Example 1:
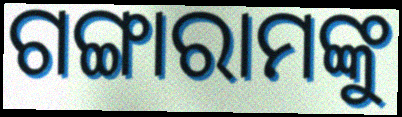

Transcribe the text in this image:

ଗଙ୍ଗାରାମଙ୍କୁ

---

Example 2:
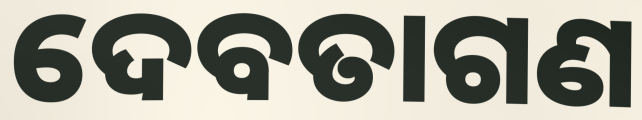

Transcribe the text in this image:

ଦେବତାଗଣ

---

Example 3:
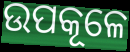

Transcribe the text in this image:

ଉପକୂଳେ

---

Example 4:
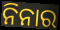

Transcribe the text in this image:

ନିନାର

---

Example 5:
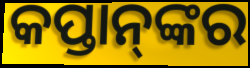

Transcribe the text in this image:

କପ୍ତାନ୍‌ଙ୍କର